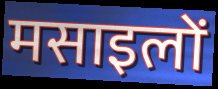
मसाइलों